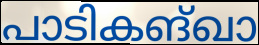
പാടികങ്ഖാ